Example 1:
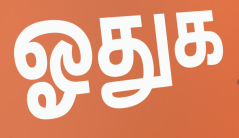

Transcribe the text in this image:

ஓதுக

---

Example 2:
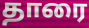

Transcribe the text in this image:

தாரை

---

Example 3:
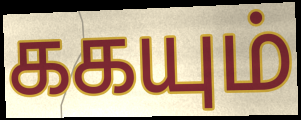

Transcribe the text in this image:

ககயும்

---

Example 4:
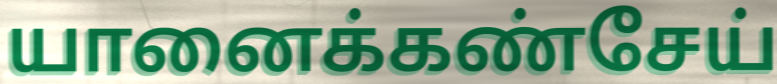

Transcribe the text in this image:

யானைக்கண்சேய்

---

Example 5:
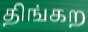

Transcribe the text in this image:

திங்கற